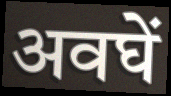
अवघें